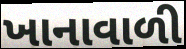
ખાનાવાળી